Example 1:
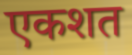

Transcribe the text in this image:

एकशत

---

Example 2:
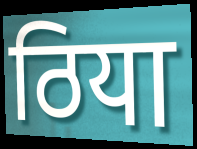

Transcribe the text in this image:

ठिया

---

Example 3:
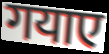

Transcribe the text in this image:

गयाए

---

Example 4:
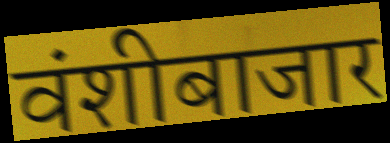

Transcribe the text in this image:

वंशीबाजार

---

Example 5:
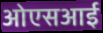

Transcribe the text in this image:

ओएसआई